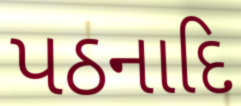
પઠનાદિ